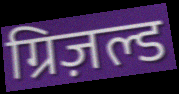
ग्रिज़ल्ड